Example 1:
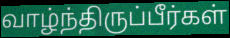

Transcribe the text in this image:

வாழ்ந்திருப்பீர்கள்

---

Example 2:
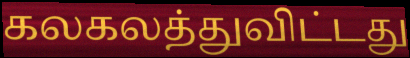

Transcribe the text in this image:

கலகலத்துவிட்டது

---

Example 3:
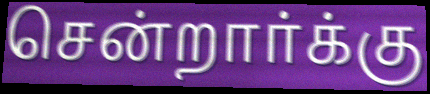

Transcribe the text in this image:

சென்றார்க்கு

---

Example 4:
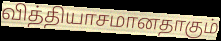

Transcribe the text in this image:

வித்தியாசமானதாகும்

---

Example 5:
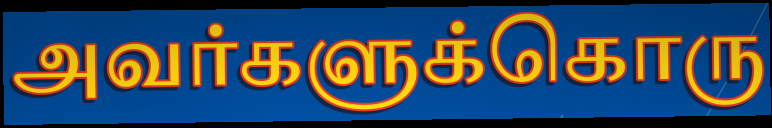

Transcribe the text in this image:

அவர்களுக்கொரு